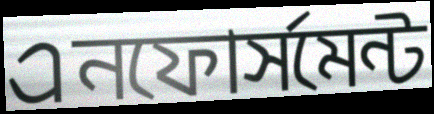
এনফোর্সমেন্ট